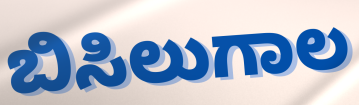
ಬಿಸಿಲುಗಾಲ